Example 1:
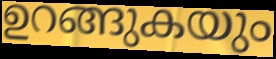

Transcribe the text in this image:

ഉറങ്ങുകയും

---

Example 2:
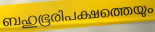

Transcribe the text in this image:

ബഹുഭൂരിപക്ഷത്തെയും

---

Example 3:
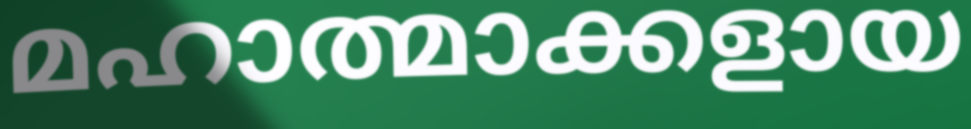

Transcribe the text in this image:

മഹാത്മാക്കളായ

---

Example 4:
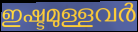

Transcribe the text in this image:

ഇഷ്ടമുള്ളവർ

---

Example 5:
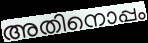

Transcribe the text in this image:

അതിനൊപ്പം